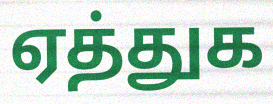
ஏத்துக